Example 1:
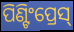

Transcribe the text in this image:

ପିଣ୍ଟିଂପ୍ରେସ୍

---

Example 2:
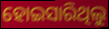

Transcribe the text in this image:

ହୋଇସାରିଥିଲୁ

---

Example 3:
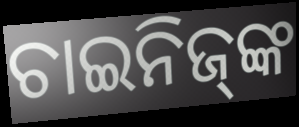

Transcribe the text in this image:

ଚାଇନିଜ୍‌ଙ୍କ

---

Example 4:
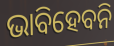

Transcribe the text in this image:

ଭାବିହେବନି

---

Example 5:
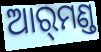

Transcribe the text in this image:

ଆର୍‌ମଣ୍ଡ